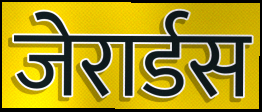
जेरार्डस